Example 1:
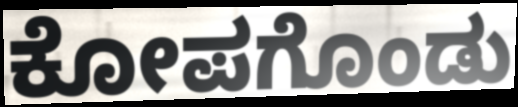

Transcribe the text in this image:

ಕೋಪಗೊಂಡು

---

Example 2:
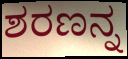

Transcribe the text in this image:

ಶರಣನ್ನ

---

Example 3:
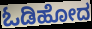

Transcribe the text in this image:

ಓಡಿಹೋದ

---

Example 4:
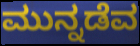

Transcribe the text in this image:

ಮುನ್ನಡೆವ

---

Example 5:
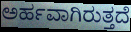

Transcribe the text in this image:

ಅರ್ಹವಾಗಿರುತ್ತದೆ